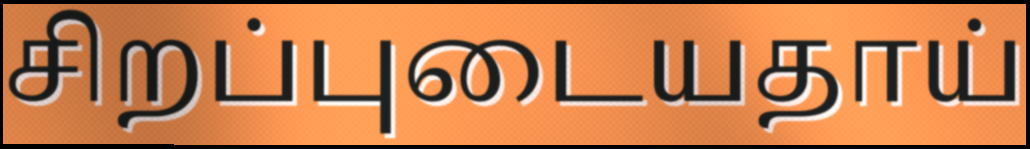
சிறப்புடையதாய்